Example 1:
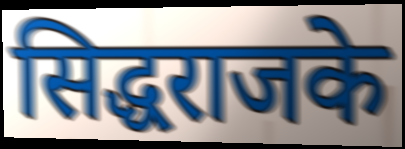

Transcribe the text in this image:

सिद्धराजके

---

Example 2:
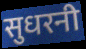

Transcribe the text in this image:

सुधरनी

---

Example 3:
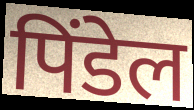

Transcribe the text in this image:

पिंडेल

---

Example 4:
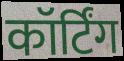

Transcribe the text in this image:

कॉर्टिंग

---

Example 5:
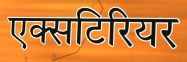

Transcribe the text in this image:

एक्सटिरियर